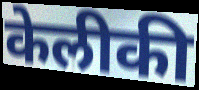
केलीकी